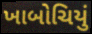
ખાબોચિયું